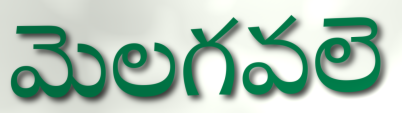
మెలగవలె